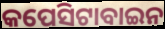
କପେସିଟାବାଇନ